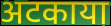
अटकाया